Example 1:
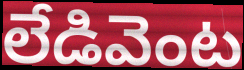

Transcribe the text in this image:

లేడివెంట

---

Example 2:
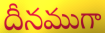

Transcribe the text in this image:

దీనముగా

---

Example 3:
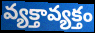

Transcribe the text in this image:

వ్యక్తావ్యక్తం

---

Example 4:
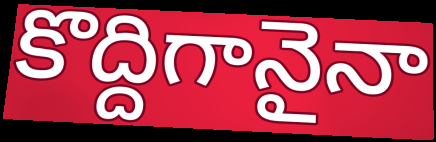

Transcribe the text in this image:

కొద్దిగానైనా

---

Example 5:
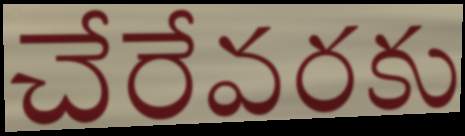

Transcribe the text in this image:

చేరేవరకు